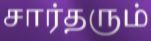
சார்தரும்